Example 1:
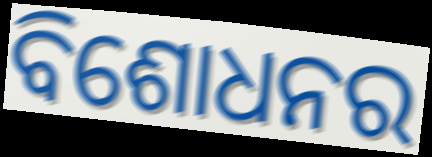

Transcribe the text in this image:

ବିଶୋଧନର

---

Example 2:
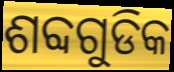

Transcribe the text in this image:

ଶବ୍ଦଗୁଡିକ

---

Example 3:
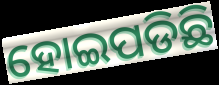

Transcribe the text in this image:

ହୋଇପଡିଛି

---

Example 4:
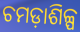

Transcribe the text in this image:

ଚମଡ଼ାଶିଳ୍ପ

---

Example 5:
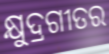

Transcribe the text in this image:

କ୍ଷୁଦ୍ରଗୀତର